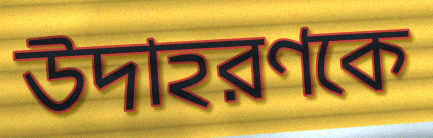
উদাহরণকে